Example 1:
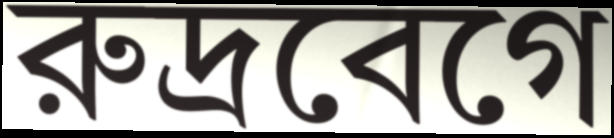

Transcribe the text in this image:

রুদ্রবেগে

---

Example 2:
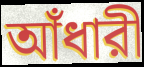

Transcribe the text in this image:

আঁধারী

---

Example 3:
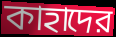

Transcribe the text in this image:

কাহাদের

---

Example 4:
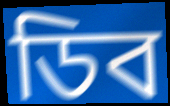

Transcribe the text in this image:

ডিব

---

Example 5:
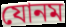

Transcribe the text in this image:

যোনম